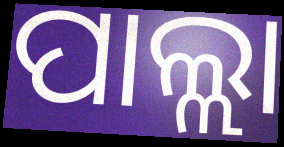
ପାଲ୍ଲା